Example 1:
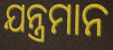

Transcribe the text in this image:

ଯନ୍ତ୍ରମାନ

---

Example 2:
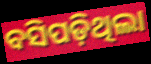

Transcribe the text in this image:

ବସିପଡ଼ିଥିଲା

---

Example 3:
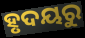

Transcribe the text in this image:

ହୃଦୟରୁ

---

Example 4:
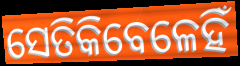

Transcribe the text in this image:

ସେତିକିବେଳେହିଁ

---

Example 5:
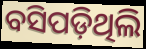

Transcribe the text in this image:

ବସିପଡ଼ିଥିଲି